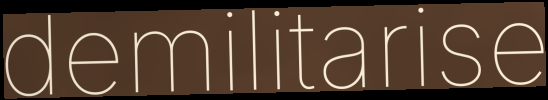
demilitarise